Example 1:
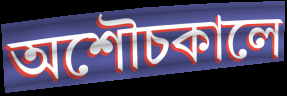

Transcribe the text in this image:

অশৌচকালে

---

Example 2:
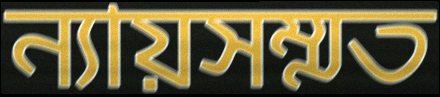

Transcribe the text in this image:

ন্যায়সম্মত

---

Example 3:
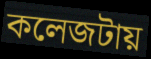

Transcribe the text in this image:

কলেজটায়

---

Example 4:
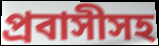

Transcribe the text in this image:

প্রবাসীসহ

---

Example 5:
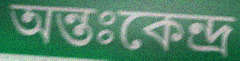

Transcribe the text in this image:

অন্তঃকেন্দ্র